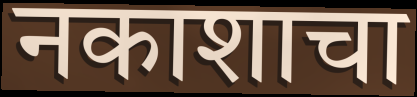
नकाशाचा